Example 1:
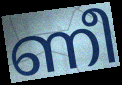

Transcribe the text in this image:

ണീ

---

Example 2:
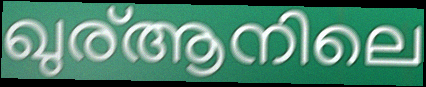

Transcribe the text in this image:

ഖുര്ആനിലെ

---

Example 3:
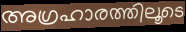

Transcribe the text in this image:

അഗ്രഹാരത്തിലൂടെ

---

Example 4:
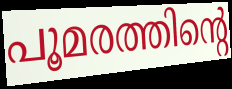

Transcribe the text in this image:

പൂമരത്തിന്റെ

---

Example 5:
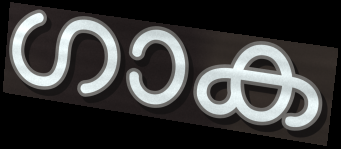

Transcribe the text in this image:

ഗാക